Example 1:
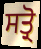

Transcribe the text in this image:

ਸਤ੍ਰੋ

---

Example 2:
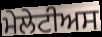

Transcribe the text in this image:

ਮੇਲੇਟੀਅਸ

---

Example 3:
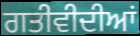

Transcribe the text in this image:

ਗਤੀਵੀਦੀਆਂ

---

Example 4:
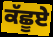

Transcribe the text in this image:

ਕੱਛੂਏ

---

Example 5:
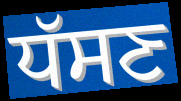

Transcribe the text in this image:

ਧੱਸਣ